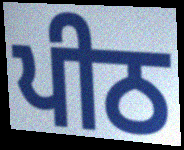
ਪੀਠ